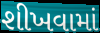
શીખવામાં